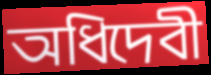
অধিদেবী